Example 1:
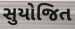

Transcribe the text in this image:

સુયોજિત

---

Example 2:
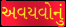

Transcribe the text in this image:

અવયવોનું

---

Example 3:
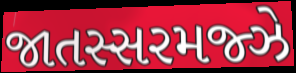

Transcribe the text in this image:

જાતસ્સરમજ્ઝે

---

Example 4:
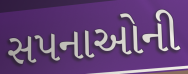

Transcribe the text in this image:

સપનાઓની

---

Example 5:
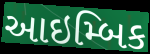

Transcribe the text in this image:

આઇમ્બિક